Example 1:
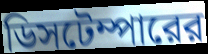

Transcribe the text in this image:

ডিসটেম্পারের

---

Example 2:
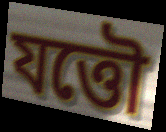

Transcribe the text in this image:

যত্তৌ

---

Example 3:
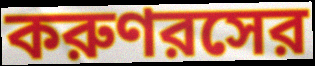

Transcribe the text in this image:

করুণরসের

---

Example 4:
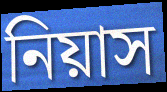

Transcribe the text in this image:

নিয়াস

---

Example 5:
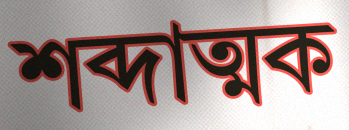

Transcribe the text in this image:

শব্দাত্মক